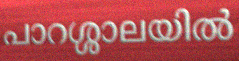
പാറശ്ശാലയിൽ